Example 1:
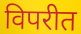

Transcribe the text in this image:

विपरीत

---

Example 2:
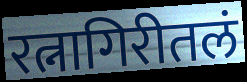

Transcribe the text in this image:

रत्नागिरीतलं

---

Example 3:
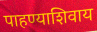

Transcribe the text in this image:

पाहण्याशिवाय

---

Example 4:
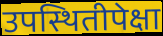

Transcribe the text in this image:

उपस्थितीपेक्षा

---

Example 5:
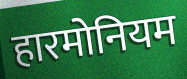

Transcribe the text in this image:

हारमोनियम